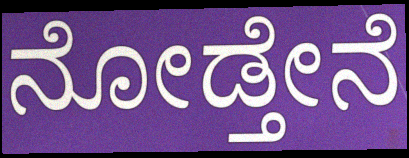
ನೋಡ್ತೇನೆ